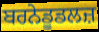
ਬਰਨੇਡੂਡਲਜ਼